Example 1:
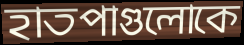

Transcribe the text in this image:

হাতপাগুলোকে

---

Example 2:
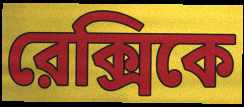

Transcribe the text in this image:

রেক্সিকে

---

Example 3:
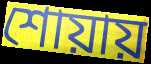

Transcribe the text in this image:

শোয়ায়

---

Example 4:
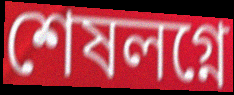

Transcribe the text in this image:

শেষলগ্নে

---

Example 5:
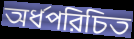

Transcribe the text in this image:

অর্ধপরিচিত